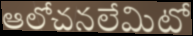
ఆలోచనలేమిటో